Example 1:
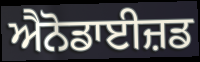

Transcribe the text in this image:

ਐਨੋਡਾਈਜ਼ਡ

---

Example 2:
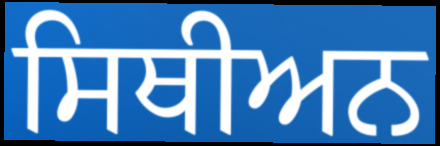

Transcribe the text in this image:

ਸਿਥੀਅਨ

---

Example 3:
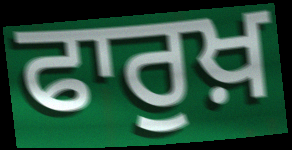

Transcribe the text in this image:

ਫਾਰੁਖ਼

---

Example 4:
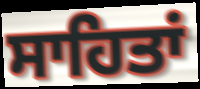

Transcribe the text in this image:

ਸਾਹਿਤਾਂ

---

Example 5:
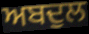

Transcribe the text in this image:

ਅਬਦੁਲ